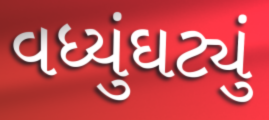
વધ્યુંઘટ્યું